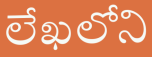
లేఖలోని